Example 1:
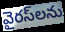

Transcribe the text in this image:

వైరస్‌లను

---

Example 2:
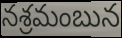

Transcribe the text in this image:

నశ్రమంబున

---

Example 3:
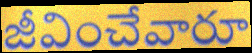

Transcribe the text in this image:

జీవించేవారూ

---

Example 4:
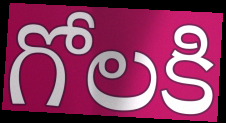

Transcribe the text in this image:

గోలకి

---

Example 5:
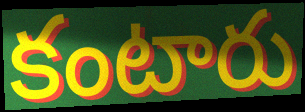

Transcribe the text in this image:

కంటారు